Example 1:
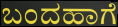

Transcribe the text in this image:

ಬಂದಹಾಗೆ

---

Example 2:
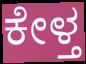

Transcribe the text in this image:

ಕೇಳ್ತ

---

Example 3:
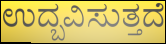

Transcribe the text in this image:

ಉದ್ಬವಿಸುತ್ತದೆ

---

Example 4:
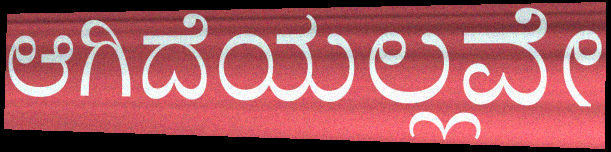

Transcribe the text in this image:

ಆಗಿದೆಯಲ್ಲವೇ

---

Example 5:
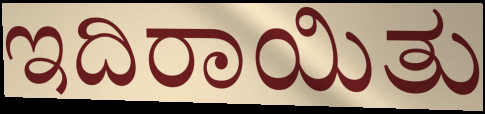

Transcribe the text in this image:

ಇದಿರಾಯಿತು